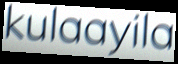
kulaayila